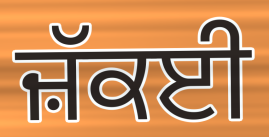
ਜ਼ੱਕਈ